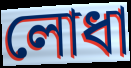
লোধা